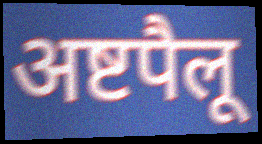
अष्टपैलू